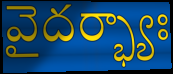
వైదర్భ్యాః